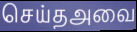
செய்தஅவை